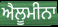
ਐਲੂਮੀਨਾ